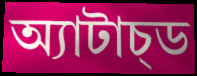
অ্যাটাচ্ড